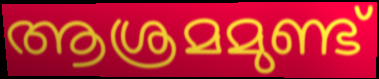
ആശ്രമമുണ്ട്